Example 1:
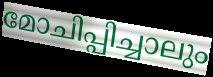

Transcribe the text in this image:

മോചിപ്പിച്ചാലും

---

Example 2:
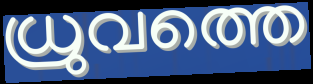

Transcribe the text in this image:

ധ്രുവത്തെ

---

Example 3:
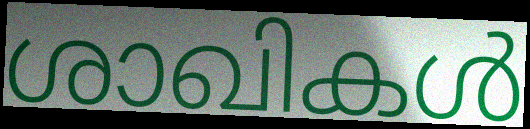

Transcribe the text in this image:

ശാഖികൾ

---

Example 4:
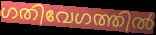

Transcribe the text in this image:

ഗതിവേഗത്തിൽ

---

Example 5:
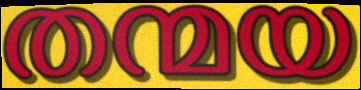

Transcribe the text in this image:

തന്മയ